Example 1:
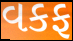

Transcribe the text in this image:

વકફ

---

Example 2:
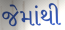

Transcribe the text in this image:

જેમાંથી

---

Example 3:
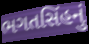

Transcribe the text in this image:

ભગતસિંહનું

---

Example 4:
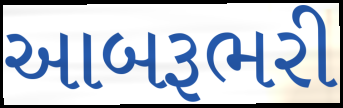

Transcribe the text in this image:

આબરૂભરી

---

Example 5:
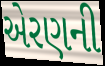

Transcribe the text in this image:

એરણની